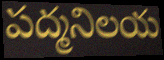
పద్మనిలయ